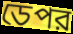
ডেপর